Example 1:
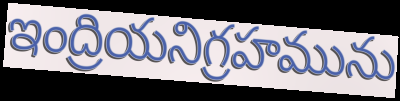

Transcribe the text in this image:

ఇంద్రియనిగ్రహమును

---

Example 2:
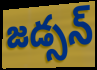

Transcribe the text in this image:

జడ్సన్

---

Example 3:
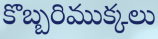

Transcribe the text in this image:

కొబ్బరిముక్కలు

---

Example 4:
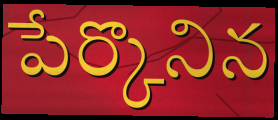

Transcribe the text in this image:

పేర్కొనిన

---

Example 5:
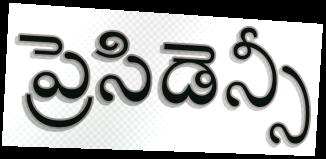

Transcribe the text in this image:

ప్రెసిడెన్సీ